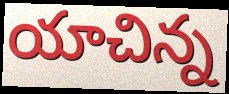
యాచిన్న